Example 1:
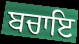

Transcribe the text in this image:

ਬਚਾਇ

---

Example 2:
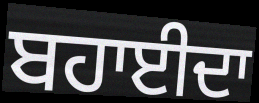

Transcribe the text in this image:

ਬਹਾਈਦਾ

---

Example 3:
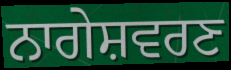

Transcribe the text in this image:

ਨਾਗੇਸ਼ਵਰਣ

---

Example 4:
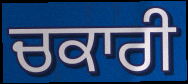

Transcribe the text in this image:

ਚਕਾਰੀ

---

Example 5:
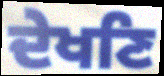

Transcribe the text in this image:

ਦੇਖਣਿ